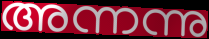
അന്നന്നു